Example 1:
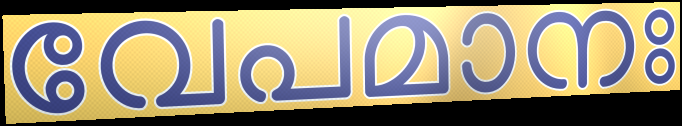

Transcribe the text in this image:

വേപമാനഃ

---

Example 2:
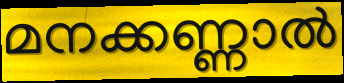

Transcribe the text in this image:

മനക്കണ്ണാൽ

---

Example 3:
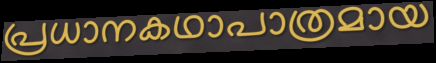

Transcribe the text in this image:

പ്രധാനകഥാപാത്രമായ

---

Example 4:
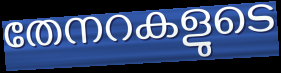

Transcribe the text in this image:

തേനറകളുടെ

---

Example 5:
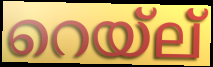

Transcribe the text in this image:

റെയ്ല്